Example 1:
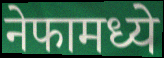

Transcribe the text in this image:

नेफामध्ये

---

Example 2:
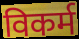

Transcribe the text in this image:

विकर्म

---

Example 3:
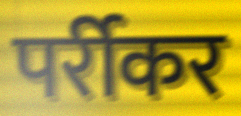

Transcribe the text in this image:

पर्रीकर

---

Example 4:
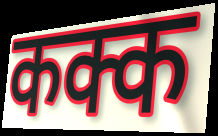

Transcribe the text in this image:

कक्क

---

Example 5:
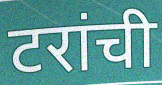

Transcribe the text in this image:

टरांची